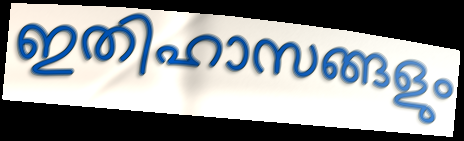
ഇതിഹാസങ്ങളും